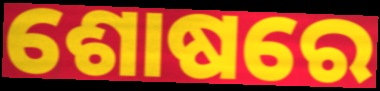
ଶୋଷରେ